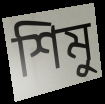
শিমু